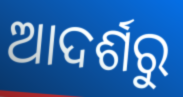
ଆଦର୍ଶରୁ